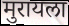
मुरायला